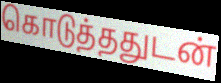
கொடுத்ததுடன்